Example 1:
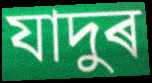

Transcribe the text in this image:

যাদুৰ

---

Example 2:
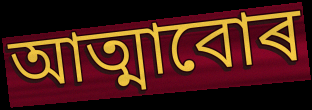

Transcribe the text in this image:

আত্মাবোৰ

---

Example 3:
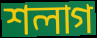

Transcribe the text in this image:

শলাগ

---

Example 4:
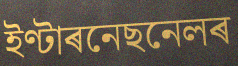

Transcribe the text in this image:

ইণ্টাৰনেছনেলৰ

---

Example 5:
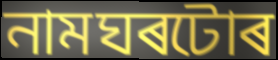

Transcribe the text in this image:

নামঘৰটোৰ